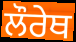
ਲੌਰੇਥ